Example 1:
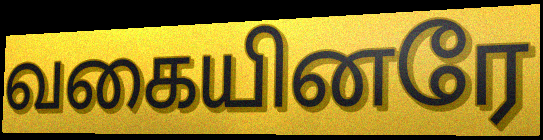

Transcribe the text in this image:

வகையினரே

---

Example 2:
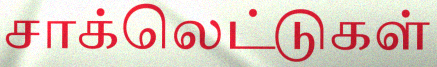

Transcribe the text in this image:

சாக்லெட்டுகள்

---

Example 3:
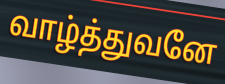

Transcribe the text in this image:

வாழ்த்துவனே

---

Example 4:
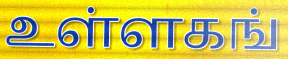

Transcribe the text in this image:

உள்ளகங்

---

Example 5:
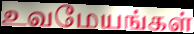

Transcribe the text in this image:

உவமேயங்கள்